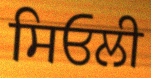
ਸਿਓਲੀ